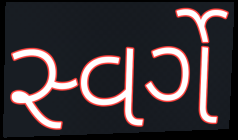
સ્વર્ગે